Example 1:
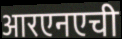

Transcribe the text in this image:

आरएनएची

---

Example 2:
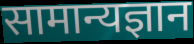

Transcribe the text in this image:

सामान्यज्ञान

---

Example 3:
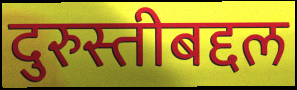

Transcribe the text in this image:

दुरुस्तीबद्दल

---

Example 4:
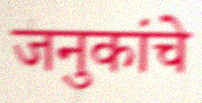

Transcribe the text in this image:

जनुकांचे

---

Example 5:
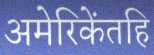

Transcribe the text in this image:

अमेरिकेंतहि